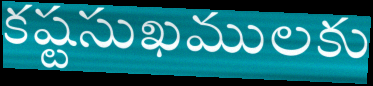
కష్టసుఖములకు